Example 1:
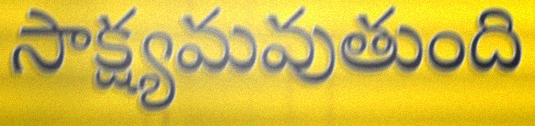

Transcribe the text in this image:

సాక్ష్యమవుతుంది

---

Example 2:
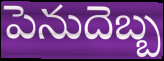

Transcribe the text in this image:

పెనుదెబ్బ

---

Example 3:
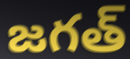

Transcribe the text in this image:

జగత్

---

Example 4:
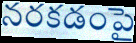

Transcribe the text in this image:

నరకడంపై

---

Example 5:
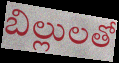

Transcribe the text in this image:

బిల్లులతో